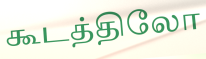
கூடத்திலோ